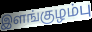
இளங்குழம்பு